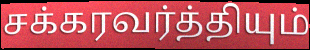
சக்கரவர்த்தியும்